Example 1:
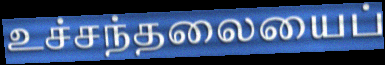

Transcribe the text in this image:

உச்சந்தலையைப்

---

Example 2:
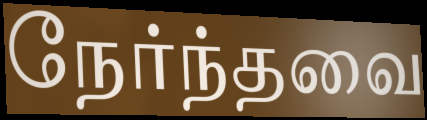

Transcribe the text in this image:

நேர்ந்தவை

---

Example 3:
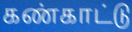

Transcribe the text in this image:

கண்காட்டு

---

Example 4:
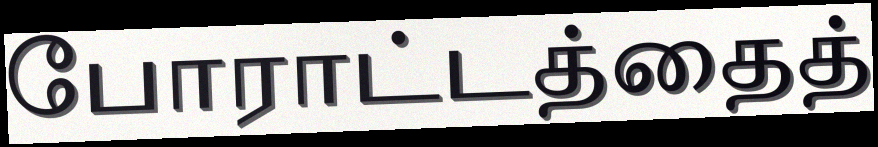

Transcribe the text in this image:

போராட்டத்தைத்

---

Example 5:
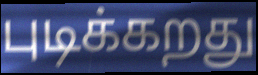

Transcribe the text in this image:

புடிக்கறது